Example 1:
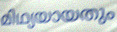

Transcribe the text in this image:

മിഥ്യയായതും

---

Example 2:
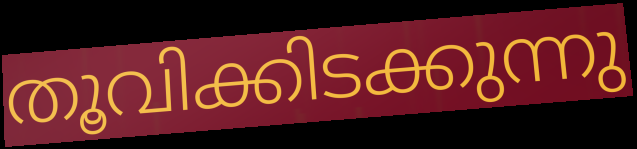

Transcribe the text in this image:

തൂവിക്കിടക്കുന്നു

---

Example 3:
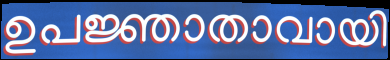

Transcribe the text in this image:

ഉപജ്ഞാതാവായി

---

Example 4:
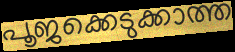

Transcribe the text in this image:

പൂജക്കെടുക്കാത്ത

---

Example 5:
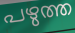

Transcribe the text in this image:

പഴുത്ത